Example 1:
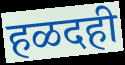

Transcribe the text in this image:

हळदही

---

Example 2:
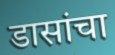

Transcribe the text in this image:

डासांचा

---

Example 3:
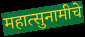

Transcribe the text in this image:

महात्सुनामीचे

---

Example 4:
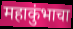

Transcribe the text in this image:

महाकुंभाचा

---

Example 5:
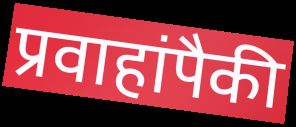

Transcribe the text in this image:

प्रवाहांपैकी